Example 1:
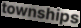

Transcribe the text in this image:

townships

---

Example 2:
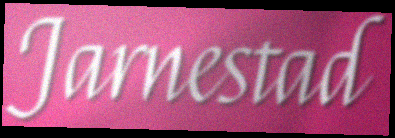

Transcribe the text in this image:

Jarnestad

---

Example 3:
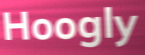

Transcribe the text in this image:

Hoogly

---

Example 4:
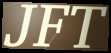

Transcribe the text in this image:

JFT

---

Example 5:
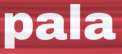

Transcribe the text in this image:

pala